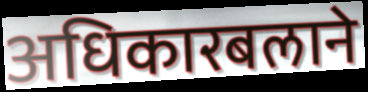
अधिकारबलाने